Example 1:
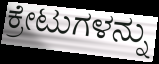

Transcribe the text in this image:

ಕ್ರೇಟುಗಳನ್ನು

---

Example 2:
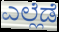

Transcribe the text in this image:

ಎಲ್ಲೆಡೆ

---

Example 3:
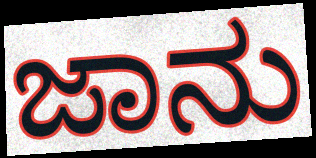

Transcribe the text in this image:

ಜಾನು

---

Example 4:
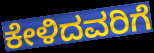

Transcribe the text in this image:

ಕೇಳಿದವರಿಗೆ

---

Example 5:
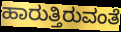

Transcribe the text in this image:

ಹಾರುತ್ತಿರುವಂತೆ